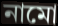
নামো